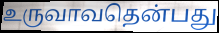
உருவாவதென்பது